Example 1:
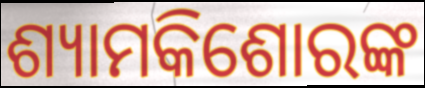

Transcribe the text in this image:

ଶ୍ୟାମକିଶୋରଙ୍କ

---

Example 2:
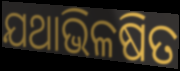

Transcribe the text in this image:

ଯଥାଭିଳଷିତ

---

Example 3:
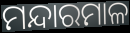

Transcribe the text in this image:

ମନ୍ଦାରମାଳ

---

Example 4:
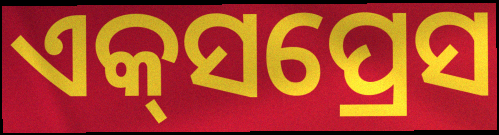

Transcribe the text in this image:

ଏକ୍‍ସପ୍ରେସ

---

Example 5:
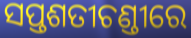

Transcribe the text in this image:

ସପ୍ତଶତୀଚଣ୍ଡୀରେ